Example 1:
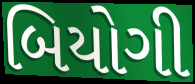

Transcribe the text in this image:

બિયોગી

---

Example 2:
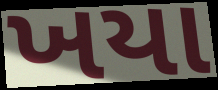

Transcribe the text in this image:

ખયા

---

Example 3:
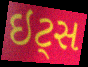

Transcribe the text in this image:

ઇટ્સ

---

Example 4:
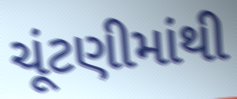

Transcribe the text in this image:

ચૂંટણીમાંથી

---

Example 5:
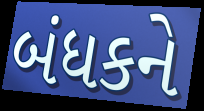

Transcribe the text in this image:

બંધકને